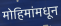
मोहिमांमधून